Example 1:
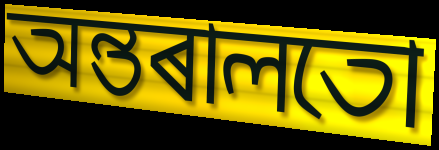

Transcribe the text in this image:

অন্তৰালতো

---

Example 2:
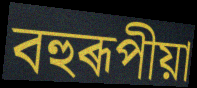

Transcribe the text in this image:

বহুৰূপীয়া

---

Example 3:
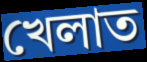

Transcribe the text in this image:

খেলাত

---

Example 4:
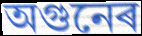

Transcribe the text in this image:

অগুনেৰ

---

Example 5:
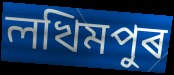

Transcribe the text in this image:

লখিমপুৰ